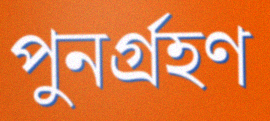
পুনর্গ্রহণ